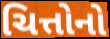
ચિત્તોનો